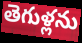
తెగుళ్లను